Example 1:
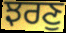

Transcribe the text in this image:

ਝਰਣੁ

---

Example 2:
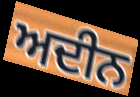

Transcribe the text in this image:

ਅਦੀਨ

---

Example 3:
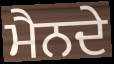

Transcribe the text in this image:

ਮੈਨਦੇ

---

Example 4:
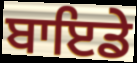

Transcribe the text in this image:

ਬਾਇਡੇ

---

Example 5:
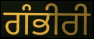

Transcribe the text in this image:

ਗੰਭੀਰੀ